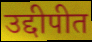
उद्दीपीत